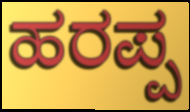
ಹರಪ್ಪ